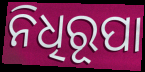
ନିଧିରୂପା